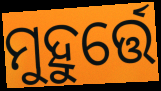
ମୁହୁର୍ତ୍ତେ